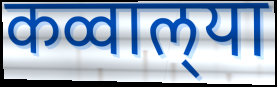
कव्वाल्या